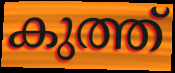
കുത്ത്